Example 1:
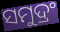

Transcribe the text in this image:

ସମୁଦ୍ରଂ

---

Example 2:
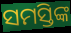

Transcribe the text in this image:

ସମସ୍ତିଙ୍କ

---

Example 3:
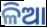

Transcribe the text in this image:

ଳିଆ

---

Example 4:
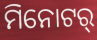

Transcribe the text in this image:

ମିନୋଟର୍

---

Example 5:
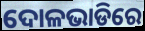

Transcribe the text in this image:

ଦୋଳଭାଡିରେ